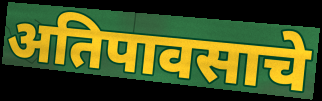
अतिपावसाचे